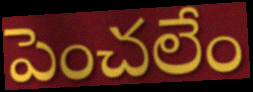
పెంచలేం